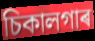
চিকালগাৰ